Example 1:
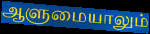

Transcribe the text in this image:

ஆளுமையாலும்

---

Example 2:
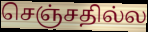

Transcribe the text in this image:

செஞ்சதில்ல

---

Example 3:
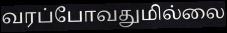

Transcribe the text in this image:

வரப்போவதுமில்லை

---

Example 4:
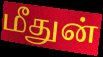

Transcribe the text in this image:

மீதுன்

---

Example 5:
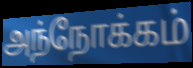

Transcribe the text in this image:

அந்நோக்கம்